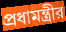
প্রধামন্ত্রীর